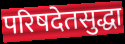
परिषदेतसुद्धा